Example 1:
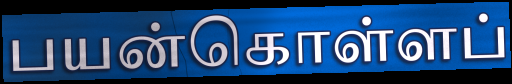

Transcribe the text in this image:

பயன்கொள்ளப்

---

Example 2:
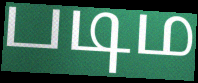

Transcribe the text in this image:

படிம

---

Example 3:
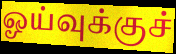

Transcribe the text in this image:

ஓய்வுக்குச்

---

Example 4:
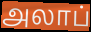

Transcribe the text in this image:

அலாப்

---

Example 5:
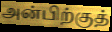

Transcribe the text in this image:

அன்பிற்குத்